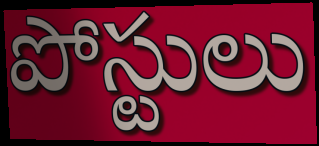
పోస్టులు